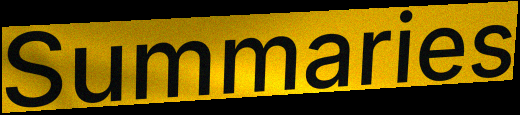
Summaries